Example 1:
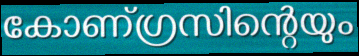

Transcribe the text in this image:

കോണ്ഗ്രസിന്റെയും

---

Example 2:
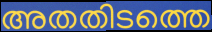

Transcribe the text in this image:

അതതിടത്തെ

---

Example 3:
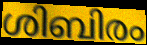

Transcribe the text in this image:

ശിബിരം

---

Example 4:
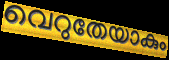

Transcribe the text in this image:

വെറുതേയാകും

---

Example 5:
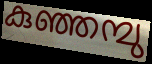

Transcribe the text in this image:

കുഞ്ഞമ്പു